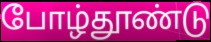
போழ்தூண்டு